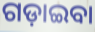
ଗଡ଼ାଇବା